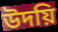
উদয়ি